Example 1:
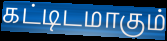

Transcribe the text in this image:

கட்டிடமாகும்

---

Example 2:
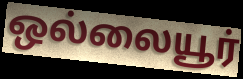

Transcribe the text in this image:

ஒல்லையூர்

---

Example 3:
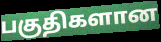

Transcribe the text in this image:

பகுதிகளான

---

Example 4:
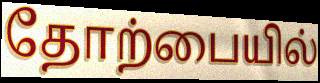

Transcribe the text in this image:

தோற்பையில்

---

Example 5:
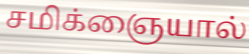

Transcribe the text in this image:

சமிக்ஞையால்